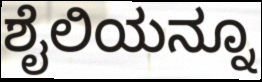
ಶೈಲಿಯನ್ನೂ